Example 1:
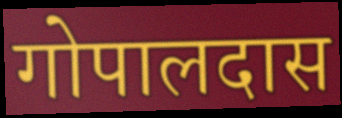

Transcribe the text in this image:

गोपालदास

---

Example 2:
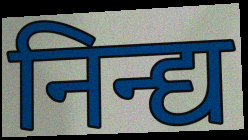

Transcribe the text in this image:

निन्द्य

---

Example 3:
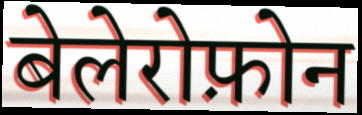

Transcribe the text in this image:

बेलेरोफ़ोन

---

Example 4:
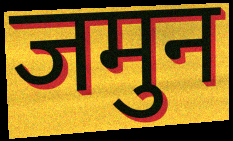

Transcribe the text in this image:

जमुन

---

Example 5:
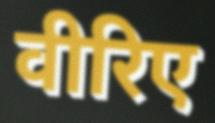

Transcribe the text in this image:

वीरिए